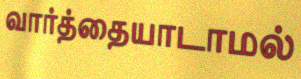
வார்த்தையாடாமல்